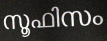
സൂഫിസം